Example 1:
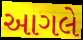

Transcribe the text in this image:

આગલે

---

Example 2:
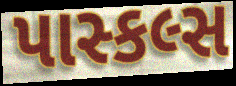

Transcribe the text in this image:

પાસ્કલ્સ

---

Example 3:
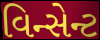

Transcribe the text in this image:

વિન્સેન્ટ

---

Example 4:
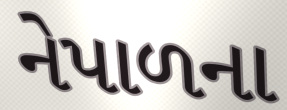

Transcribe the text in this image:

નેપાળના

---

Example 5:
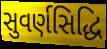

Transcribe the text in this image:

સુવર્ણસિદ્ધિ